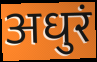
अधुरं